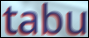
tabu